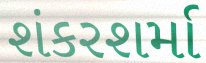
શંકરશર્મા